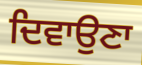
ਦਿਵਾਉਣਾ